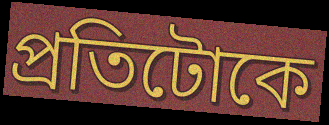
প্ৰতিটোকে